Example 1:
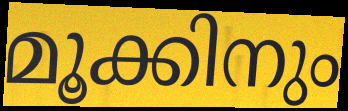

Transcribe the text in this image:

മൂക്കിനും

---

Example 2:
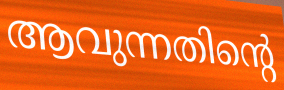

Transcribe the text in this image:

ആവുന്നതിന്റെ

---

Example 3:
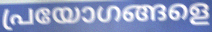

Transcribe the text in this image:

പ്രയോഗങ്ങളെ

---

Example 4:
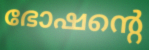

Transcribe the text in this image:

ഭോഷന്റെ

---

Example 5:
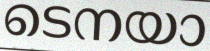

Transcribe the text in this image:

ടെനയാ